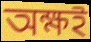
অক্ষই